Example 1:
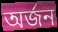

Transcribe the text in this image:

অৰ্জন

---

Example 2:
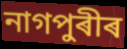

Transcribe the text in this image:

নাগপুৰীৰ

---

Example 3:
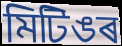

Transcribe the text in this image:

মিটিঙৰ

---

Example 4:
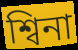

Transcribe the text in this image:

শ্বিনা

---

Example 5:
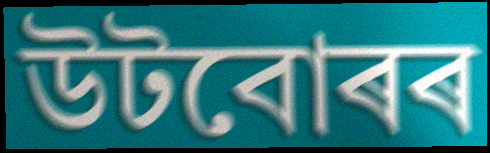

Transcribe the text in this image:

উটবোৰৰ